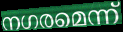
നഗരമെന്ന്